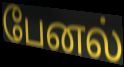
பேனல்